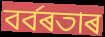
বৰ্বৰতাৰ